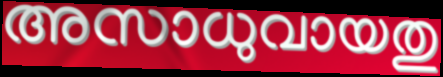
അസാധുവായതു